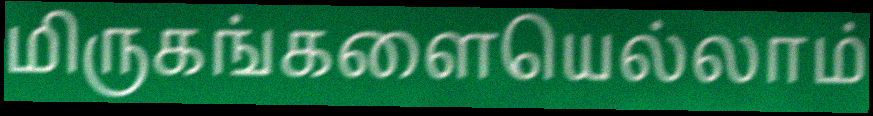
மிருகங்களையெல்லாம்